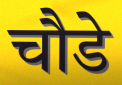
चौडे